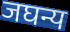
जघन्‍य